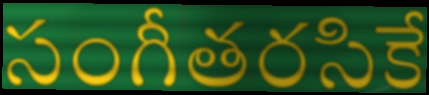
సంగీతరసికే